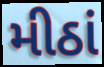
મીઠાં